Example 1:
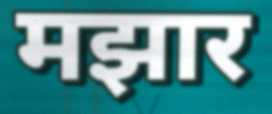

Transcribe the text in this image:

मझार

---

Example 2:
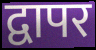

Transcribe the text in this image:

द्वापर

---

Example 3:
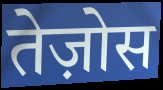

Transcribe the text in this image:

तेज़ोस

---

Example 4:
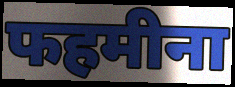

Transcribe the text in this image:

फहमीना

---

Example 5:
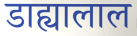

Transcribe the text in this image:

डाह्यालाल